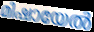
മിഷായേൽ